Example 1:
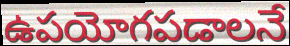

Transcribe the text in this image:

ఉపయోగపడాలనే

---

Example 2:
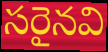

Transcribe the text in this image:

సరైనవి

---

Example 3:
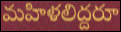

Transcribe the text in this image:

మహిళలిద్దరూ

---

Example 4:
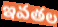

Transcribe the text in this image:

ఇవతల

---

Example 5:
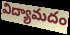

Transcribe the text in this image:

విద్యామదం